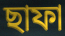
ছাফা